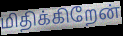
மிதிக்கிறேன்